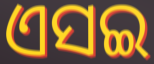
ଏସଇ